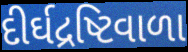
દીર્ઘદ્રષ્ટિવાળા